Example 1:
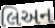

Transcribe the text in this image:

લિઅન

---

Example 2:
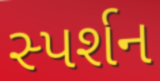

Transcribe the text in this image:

સ્પર્શન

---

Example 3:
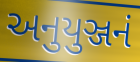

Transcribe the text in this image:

અનુયુઞ્જનં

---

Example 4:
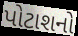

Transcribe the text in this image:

પોટાશનો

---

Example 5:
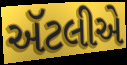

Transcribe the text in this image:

ઍટલીએ